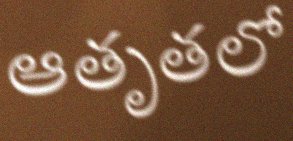
ఆతృతలో